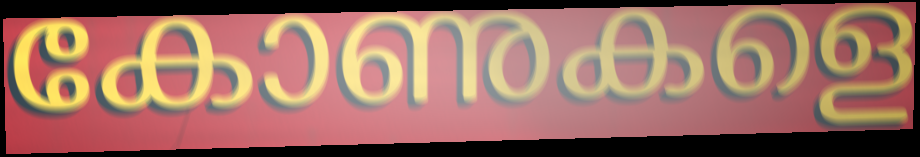
കോണുകളെ